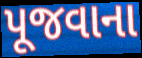
પૂજવાના